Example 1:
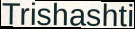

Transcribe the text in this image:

Trishashti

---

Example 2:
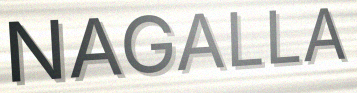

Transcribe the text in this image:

NAGALLA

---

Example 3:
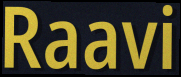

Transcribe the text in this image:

Raavi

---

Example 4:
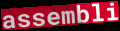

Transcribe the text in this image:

assembli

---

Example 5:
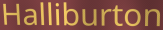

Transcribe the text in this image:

Halliburton